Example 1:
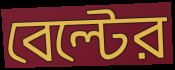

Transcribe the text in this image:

বেল্টের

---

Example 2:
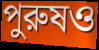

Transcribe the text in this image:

পুরুষও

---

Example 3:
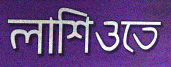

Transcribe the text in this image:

লাশিওতে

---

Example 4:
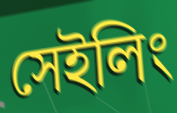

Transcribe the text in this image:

সেইলিং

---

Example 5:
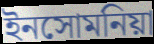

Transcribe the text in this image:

ইনসোমনিয়া